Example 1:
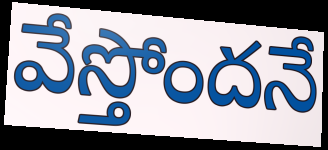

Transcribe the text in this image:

వేస్తోందనే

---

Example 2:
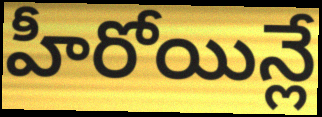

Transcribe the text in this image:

హీరోయిన్లే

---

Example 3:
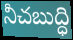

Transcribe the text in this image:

నీచబుద్ధి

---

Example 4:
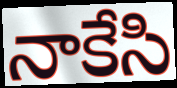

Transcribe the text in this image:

నాకేసి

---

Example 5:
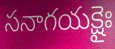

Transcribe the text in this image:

సనాగయక్షైః